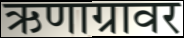
ऋणाग्रावर